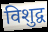
विशुद्व